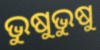
ଭୁଷୁଭୁଷୁ